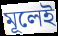
মূলেই